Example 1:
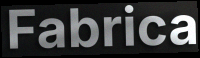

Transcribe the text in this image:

Fabrica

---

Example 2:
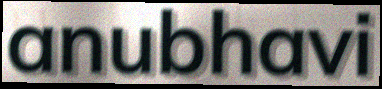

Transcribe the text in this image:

anubhavi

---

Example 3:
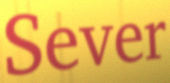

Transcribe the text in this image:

Sever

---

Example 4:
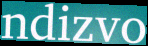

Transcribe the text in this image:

ndizvo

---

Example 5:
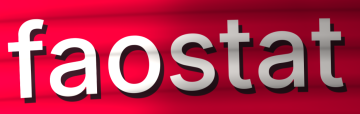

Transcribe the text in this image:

faostat